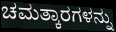
ಚಮತ್ಕಾರಗಳನ್ನು